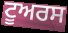
ਟੂਅਰਸ